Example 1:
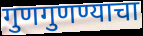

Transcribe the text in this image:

गुणगुणण्याचा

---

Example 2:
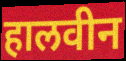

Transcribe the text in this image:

हालवीन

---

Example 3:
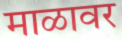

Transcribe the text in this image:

माळावर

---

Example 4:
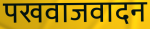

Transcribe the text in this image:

पखवाजवादन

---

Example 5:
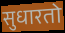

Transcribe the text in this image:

सुधारतो